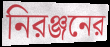
নিরঞ্জনের